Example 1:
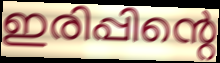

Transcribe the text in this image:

ഇരിപ്പിന്റെ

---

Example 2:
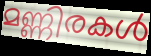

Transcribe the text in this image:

മണ്ണിരകൾ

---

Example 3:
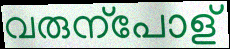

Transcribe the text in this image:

വരുന്പോള്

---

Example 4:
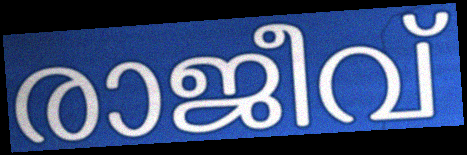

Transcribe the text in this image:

രാജീവ്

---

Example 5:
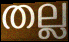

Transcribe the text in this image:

തല്ല